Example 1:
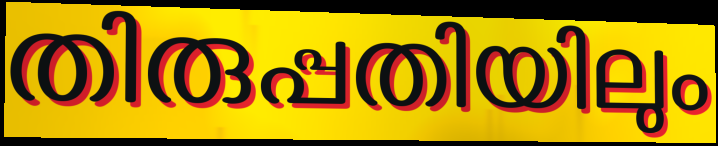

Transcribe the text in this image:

തിരുപ്പതിയിലും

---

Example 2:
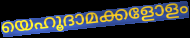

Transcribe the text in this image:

യെഹൂദാമക്കളോളം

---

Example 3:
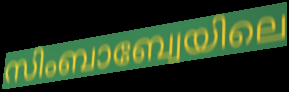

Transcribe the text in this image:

സിംബാബ്വേയിലെ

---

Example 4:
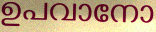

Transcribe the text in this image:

ഉപവാനോ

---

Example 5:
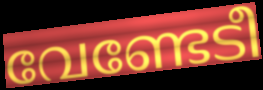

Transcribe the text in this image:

വേണ്ടേടീ